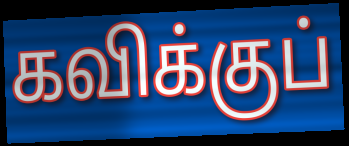
கவிக்குப்